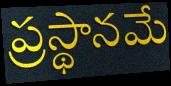
ప్రస్థానమే